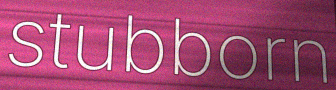
stubborn